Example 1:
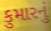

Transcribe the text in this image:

કુમારનું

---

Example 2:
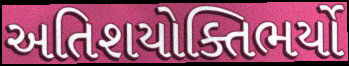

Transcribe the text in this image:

અતિશયોક્તિભર્યો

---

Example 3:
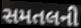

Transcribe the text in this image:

સમતલની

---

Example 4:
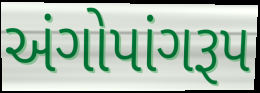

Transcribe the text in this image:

અંગોપાંગરૂપ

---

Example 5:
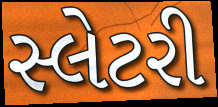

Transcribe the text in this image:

સ્લેટરી